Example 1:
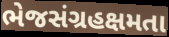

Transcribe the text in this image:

ભેજસંગ્રહક્ષમતા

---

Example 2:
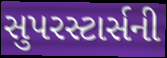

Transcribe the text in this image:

સુપરસ્ટાર્સની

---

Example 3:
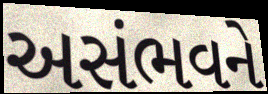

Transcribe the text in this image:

અસંભવને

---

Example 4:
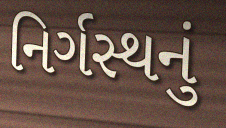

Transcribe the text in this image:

નિર્ગસ્થનું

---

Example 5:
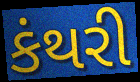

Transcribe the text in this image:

કંથરી